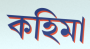
কহিমা